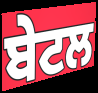
ਬੇਟਲ